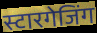
स्टारगेजिंग